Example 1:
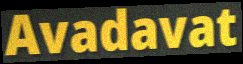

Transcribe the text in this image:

Avadavat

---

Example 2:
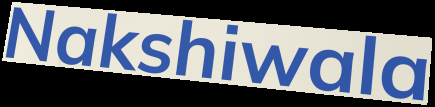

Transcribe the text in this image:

Nakshiwala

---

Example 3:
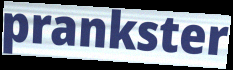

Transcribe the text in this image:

prankster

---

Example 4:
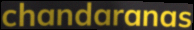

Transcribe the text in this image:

chandaranas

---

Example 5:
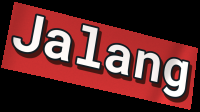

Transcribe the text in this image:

Jalang